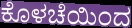
ಕೊಳಚೆಯಿಂದ